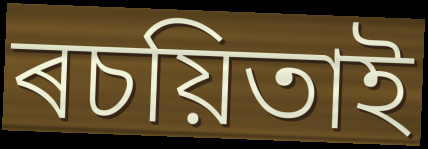
ৰচয়িতাই